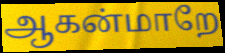
ஆகன்மாறே